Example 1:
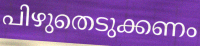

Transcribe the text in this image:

പിഴുതെടുക്കണം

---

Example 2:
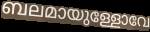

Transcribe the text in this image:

ബലമായുള്ളോവേ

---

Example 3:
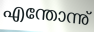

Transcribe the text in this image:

എന്തോന്നു്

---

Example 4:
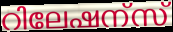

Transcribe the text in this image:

റിലേഷന്സ്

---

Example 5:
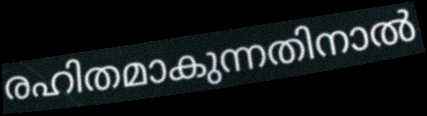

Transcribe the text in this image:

രഹിതമാകുന്നതിനാൽ